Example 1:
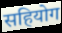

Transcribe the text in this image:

सहियोग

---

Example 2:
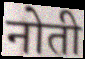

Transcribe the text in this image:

नोती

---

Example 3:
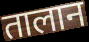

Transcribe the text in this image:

तालान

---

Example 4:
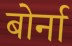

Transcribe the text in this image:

बोर्ना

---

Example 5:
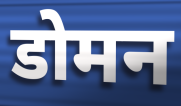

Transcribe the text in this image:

डोमन